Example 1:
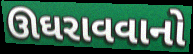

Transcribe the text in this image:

ઊઘરાવવાનો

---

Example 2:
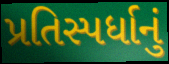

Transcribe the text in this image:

પ્રતિસ્પર્ધાનું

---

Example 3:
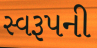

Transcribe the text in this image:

સ્વરૂપની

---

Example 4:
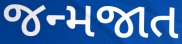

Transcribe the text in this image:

જન્મજાત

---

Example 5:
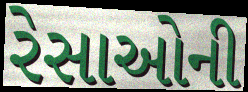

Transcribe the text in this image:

રેસાઓની